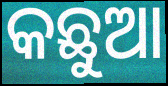
କଛୁଆ